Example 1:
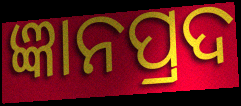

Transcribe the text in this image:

ଜ୍ଞାନପ୍ରଦ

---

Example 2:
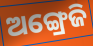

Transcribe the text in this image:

ଅଙ୍ଗ୍ରେଜି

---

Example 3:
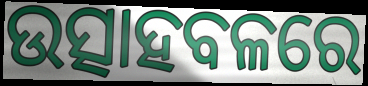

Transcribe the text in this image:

ଉତ୍ସାହବଳରେ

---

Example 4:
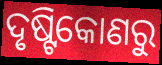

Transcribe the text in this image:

ଦୃଷ୍ଟିକୋଣରୁ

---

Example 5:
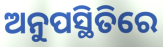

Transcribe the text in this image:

ଅନୁପସ୍ଥିତିରେ